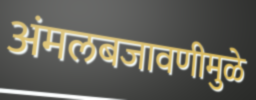
अंमलबजावणीमुळे